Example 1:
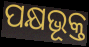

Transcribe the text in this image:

ପକ୍ଷଭୂକ୍ତ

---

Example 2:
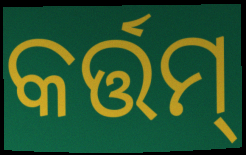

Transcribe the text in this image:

କର୍ତ୍ତମ୍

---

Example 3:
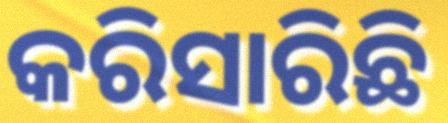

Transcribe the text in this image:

କରିସାରିଛି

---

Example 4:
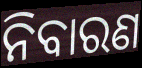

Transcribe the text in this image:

ନିବାରଣ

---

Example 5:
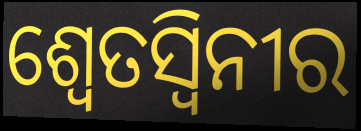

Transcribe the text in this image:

ଶ୍ୱେତସ୍ୱିନୀର